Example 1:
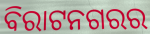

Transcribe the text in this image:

ବିରାଟନଗରର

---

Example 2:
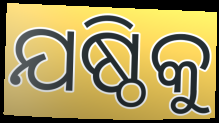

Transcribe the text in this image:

ଯଷ୍ଠିକୁ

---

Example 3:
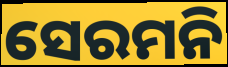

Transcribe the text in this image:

ସେରମନି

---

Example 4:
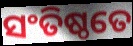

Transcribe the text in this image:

ସଂତିଷ୍ଠତେ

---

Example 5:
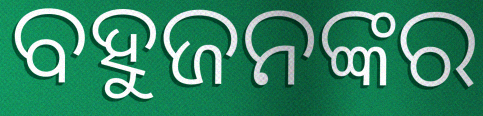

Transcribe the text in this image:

ବହୁଜନଙ୍କର